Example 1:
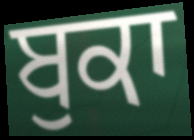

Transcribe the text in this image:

ਬੁਕਾ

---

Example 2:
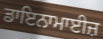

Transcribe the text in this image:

ਡਾਇਨਾਮਾਈਜ਼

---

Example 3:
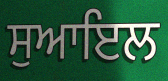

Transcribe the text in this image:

ਸੁਆਇਲ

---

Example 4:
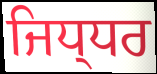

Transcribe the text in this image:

ਜਿਧ੍ਧਰ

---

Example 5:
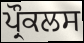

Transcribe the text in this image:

ਪ੍ਰੌਕਲਸ